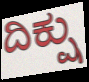
ದಿಕ್ಷು